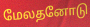
மேலதனோடு